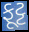
ફૂટ્ટ